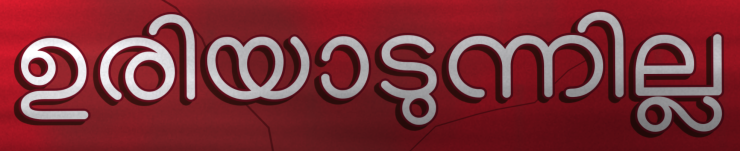
ഉരിയാടുന്നില്ല